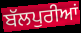
ਬੱਲਪੁਰੀਆਂ